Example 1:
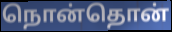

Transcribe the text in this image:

நொன்தொன்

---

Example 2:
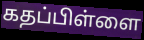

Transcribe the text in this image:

கதப்பிள்ளை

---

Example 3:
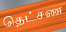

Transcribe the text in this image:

தெட்சண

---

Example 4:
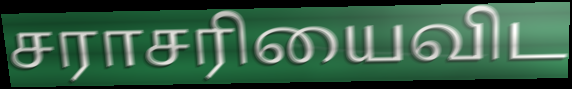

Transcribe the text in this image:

சராசரியைவிட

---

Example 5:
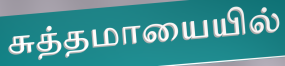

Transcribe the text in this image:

சுத்தமாயையில்